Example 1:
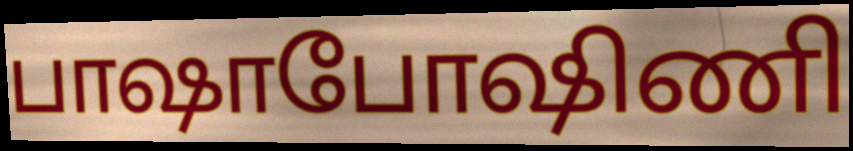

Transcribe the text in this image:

பாஷாபோஷிணி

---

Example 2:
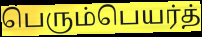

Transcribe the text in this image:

பெரும்பெயர்த்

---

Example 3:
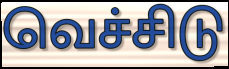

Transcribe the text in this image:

வெச்சிடு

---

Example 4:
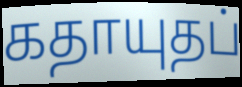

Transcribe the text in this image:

கதாயுதப்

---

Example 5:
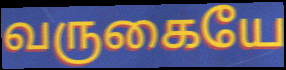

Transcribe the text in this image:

வருகையே